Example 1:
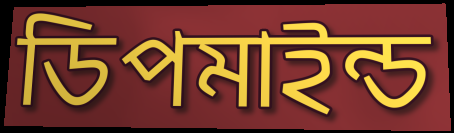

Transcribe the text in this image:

ডিপমাইন্ড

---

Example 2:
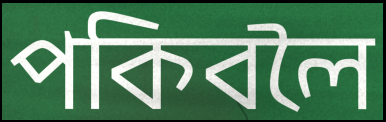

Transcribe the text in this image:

পকিবলৈ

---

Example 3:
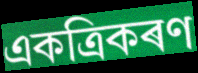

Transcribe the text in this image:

একত্ৰিকৰণ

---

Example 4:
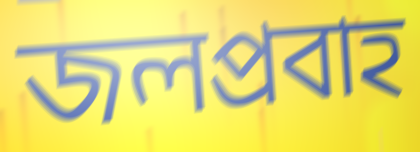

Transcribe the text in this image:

জলপ্ৰবাহ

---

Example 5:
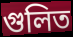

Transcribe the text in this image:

গুলিত